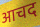
आचद